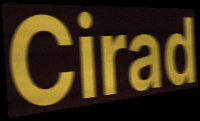
Cirad